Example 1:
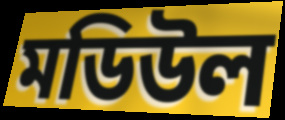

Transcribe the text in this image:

মডিউল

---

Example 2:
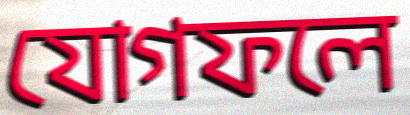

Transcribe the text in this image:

যোগফলে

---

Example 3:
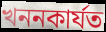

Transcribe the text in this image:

খননকাৰ্যত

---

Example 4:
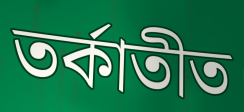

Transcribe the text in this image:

তৰ্কাতীত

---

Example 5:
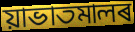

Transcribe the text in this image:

য়াভাতমালৰ